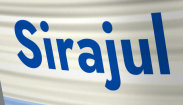
Sirajul